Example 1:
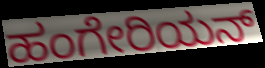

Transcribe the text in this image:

ಹಂಗೇರಿಯನ್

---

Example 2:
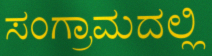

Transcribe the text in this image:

ಸಂಗ್ರಾಮದಲ್ಲಿ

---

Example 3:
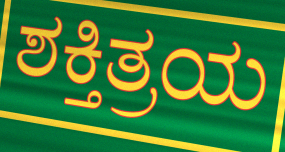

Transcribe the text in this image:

ಶಕ್ತಿತ್ರಯ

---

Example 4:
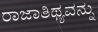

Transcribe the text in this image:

ರಾಜಾತಿಥ್ಯವನ್ನು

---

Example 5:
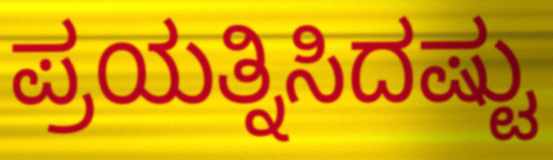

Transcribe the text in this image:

ಪ್ರಯತ್ನಿಸಿದಷ್ಟು